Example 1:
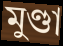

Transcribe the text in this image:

মুণ্ডা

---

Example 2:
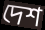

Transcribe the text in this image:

দেশ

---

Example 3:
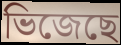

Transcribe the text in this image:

ভিজেছে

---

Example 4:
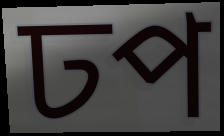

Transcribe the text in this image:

ঢপ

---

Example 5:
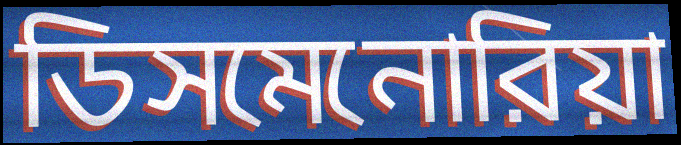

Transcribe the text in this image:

ডিসমেনোরিয়া